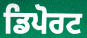
ਡਿਪੋਰਟ